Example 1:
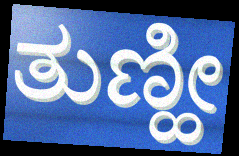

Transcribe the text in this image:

ತುಣ್ಹೀ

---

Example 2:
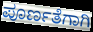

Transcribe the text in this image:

ಪೂರ್ಣತೆಗಾಗಿ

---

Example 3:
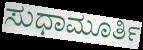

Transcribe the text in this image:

ಸುಧಾಮೂರ್ತಿ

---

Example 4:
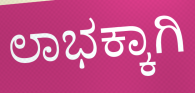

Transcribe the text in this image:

ಲಾಭಕ್ಕಾಗಿ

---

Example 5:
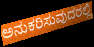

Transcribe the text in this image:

ಅನುಕರಿಸುವುದರಲ್ಲಿ